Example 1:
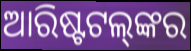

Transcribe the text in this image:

ଆରିଷ୍ଟଟଲ୍‌ଙ୍କର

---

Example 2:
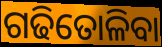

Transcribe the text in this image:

ଗଢିତୋଳିବା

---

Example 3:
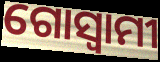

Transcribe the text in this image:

ଗୋସ୍ୱାମୀ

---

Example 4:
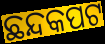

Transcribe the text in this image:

ଛନ୍ଦକପଟ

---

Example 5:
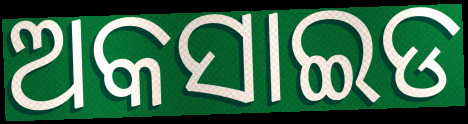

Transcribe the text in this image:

ଅକସାଇଡ